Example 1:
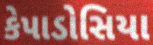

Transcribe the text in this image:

કેપાડોસિયા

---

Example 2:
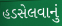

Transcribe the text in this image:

હડસેલવાનું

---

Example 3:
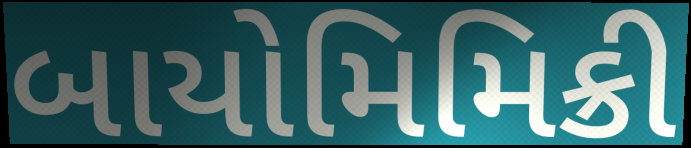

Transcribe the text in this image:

બાયોમિમિક્રી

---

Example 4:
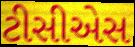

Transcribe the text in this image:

ટીસીએસ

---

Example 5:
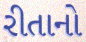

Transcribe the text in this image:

રીતાનો